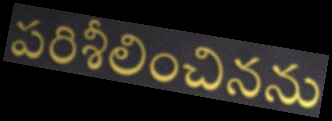
పరిశీలించినను